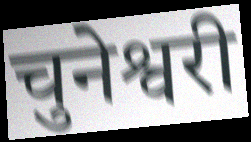
चुनेश्वरी